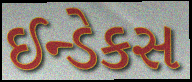
ઈન્ડેકસ